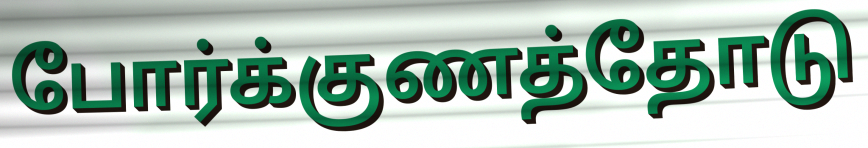
போர்க்குணத்தோடு